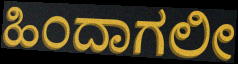
ಹಿಂದಾಗಲೀ